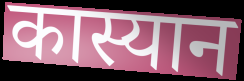
कास्यान